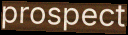
prospect